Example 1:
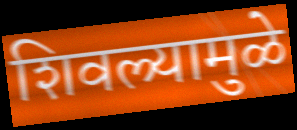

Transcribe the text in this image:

शिवल्यामुळे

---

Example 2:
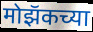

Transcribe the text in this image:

मोझॅकच्या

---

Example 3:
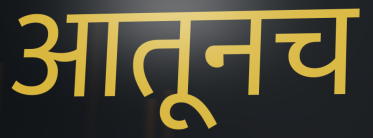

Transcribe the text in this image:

आतूनच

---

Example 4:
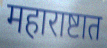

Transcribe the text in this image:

महाराष्टात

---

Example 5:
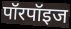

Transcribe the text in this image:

पॉरपॉइज